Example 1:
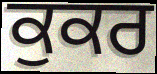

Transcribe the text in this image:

ਕੁਕਰ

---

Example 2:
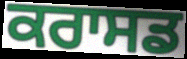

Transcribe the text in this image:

ਕਰਾਸਡ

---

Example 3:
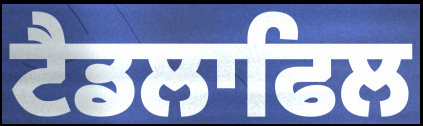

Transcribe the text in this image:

ਟੈਡਲਾਫਿਲ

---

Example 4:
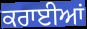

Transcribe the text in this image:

ਕਰਾਈਆਂ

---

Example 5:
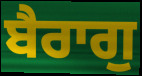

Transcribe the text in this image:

ਬੈਰਾਗੁ